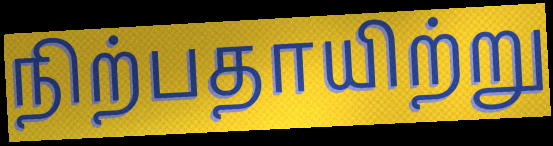
நிற்பதாயிற்று